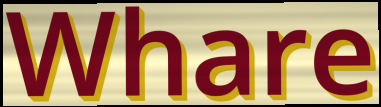
Whare